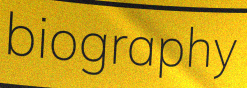
biography